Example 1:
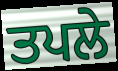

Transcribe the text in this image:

ਤਪਲੇ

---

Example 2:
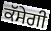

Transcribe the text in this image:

ਕੱਸੇਗੀ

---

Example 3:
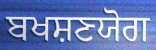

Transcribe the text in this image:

ਬਖਸ਼ਣਯੋਗ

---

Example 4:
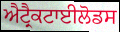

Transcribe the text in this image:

ਐਟ੍ਰੈਕਟਾਈਲੋਡਸ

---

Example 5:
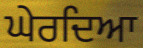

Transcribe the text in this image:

ਘੇਰਦਿਆ